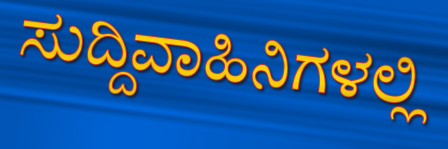
ಸುದ್ದಿವಾಹಿನಿಗಳಲ್ಲಿ